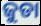
ଜୁଡା